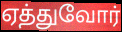
ஏத்துவோர்